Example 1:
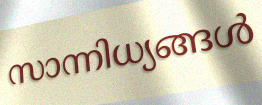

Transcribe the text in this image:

സാന്നിധ്യങ്ങൾ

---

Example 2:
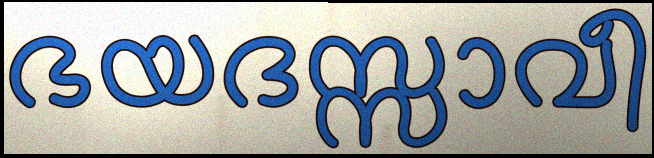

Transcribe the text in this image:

ഭയദസ്സാവീ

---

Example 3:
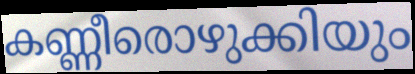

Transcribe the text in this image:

കണ്ണീരൊഴുക്കിയും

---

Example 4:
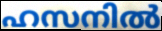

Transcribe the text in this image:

ഹസനിൽ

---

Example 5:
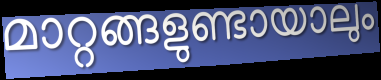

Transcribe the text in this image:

മാറ്റങ്ങളുണ്ടായാലും